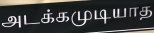
அடக்கமுடியாத